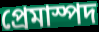
প্রেমাস্পদ